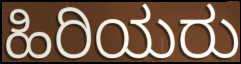
ಹಿರಿಯರು